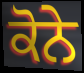
ਕੋਨੇ